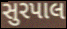
સુરપાલ